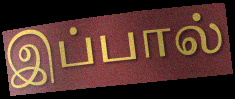
இப்பால்